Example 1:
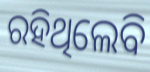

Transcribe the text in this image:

ରହିଥିଲେବି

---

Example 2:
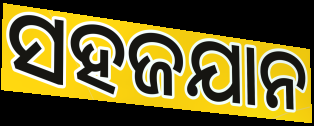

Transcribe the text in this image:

ସହଜଯାନ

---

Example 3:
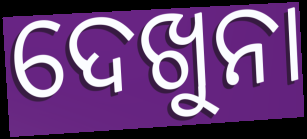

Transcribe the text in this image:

ଦେଖୁନା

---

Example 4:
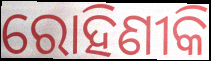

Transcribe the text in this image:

ରୋହିଣୀକି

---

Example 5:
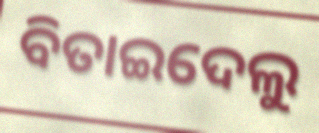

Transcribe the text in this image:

ବିତାଇଦେଲୁ